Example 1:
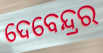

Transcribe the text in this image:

ଦେବେନ୍ଦ୍ରର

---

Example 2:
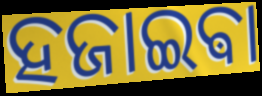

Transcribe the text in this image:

ହଜାଇଵା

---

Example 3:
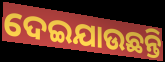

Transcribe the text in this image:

ଦେଇଯାଉଛନ୍ତି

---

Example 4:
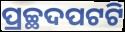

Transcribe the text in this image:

ପ୍ରଚ୍ଛଦପଟଟି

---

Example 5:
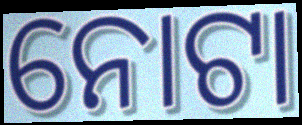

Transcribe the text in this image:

ନୋଟା